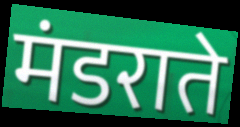
मंडराते